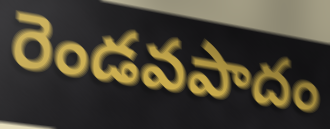
రెండవపాదం